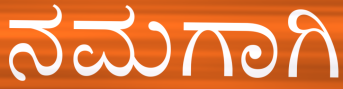
ನಮಗಾಗಿ